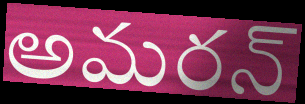
అమరన్